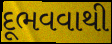
દૂભવવાથી